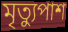
মৃত্যুপাশ